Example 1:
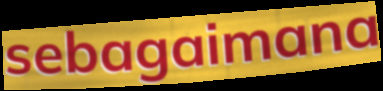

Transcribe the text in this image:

sebagaimana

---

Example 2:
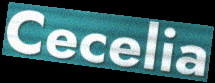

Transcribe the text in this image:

Cecelia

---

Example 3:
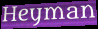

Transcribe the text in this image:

Heyman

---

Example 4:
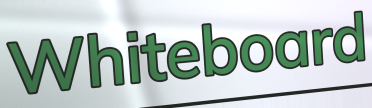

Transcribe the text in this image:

Whiteboard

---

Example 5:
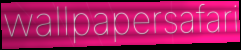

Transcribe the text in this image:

wallpapersafari